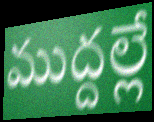
ముద్దల్లే